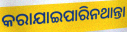
କରାଯାଇପାରିନଥାନ୍ତା